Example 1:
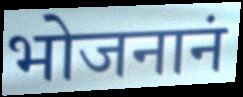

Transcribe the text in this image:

भोजनानं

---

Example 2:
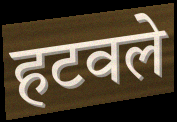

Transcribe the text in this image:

हटवले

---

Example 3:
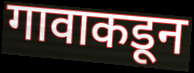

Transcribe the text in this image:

गावाकडून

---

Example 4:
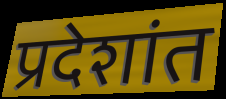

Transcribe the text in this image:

प्रदेशांत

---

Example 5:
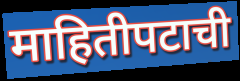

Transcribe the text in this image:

माहितीपटाची